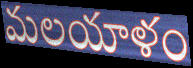
మలయాళం